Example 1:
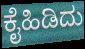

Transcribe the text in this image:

ಕೈಹಿಡಿದು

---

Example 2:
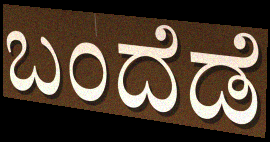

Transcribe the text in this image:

ಬಂದೆಡೆ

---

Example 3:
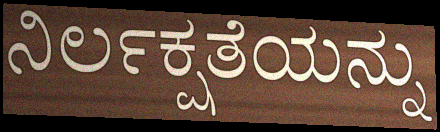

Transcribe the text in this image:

ನಿರ್ಲಕ್ಷತೆಯನ್ನು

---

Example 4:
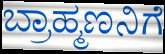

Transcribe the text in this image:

ಬ್ರಾಹ್ಮಣನಿಗೆ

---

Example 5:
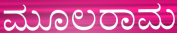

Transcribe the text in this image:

ಮೂಲರಾಮ